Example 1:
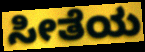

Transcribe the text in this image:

ಸೀತೆಯ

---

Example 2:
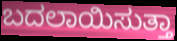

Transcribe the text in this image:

ಬದಲಾಯಿಸುತ್ತಾ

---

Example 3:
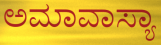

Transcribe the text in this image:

ಅಮಾವಾಸ್ಯಾ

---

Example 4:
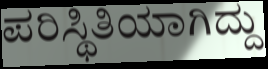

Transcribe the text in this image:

ಪರಿಸ್ಥಿತಿಯಾಗಿದ್ದು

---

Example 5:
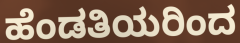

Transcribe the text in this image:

ಹೆಂಡತಿಯರಿಂದ